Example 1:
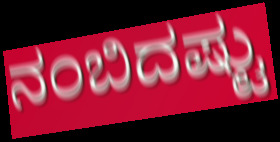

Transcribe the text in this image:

ನಂಬಿದಷ್ಟು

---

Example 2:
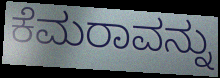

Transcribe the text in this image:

ಕೆಮರಾವನ್ನು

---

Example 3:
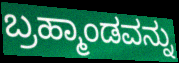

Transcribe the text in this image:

ಬ್ರಹ್ಮಾಂಡವನ್ನು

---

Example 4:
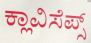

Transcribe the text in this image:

ಕ್ಲಾವಿಸೆಪ್ಸ್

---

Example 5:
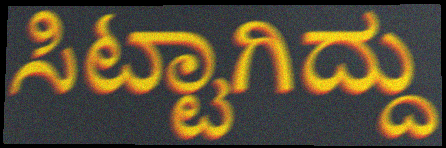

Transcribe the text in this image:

ಸಿಟ್ಟಾಗಿದ್ದು